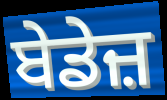
ਬੇਡੇਜ਼